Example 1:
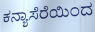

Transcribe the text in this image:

ಕನ್ಯಾಸೆರೆಯಿಂದ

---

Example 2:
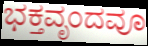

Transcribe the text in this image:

ಭಕ್ತವೃಂದವೂ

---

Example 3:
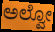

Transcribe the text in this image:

ಅಲ್ವೋ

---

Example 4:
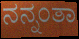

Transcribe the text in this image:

ನನ್ನಂತಾ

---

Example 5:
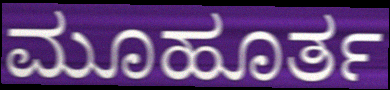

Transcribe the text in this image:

ಮೂಹೂರ್ತ